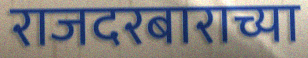
राजदरबाराच्या